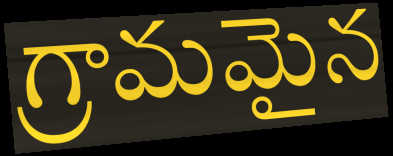
గ్రామమైన